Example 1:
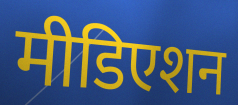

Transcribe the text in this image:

मीडिएशन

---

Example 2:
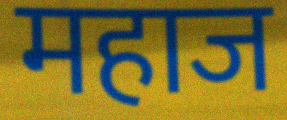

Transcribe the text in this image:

महाज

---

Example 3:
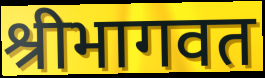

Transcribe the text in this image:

श्रीभागवत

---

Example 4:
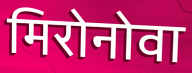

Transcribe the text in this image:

मिरोनोवा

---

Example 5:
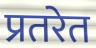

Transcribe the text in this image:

प्रतरेत